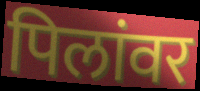
पिलांवर